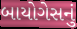
બાયોગેસનું